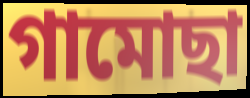
গামোছা